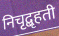
निचृद्बृहती